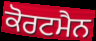
ਕੋਰਟਮੈਨ